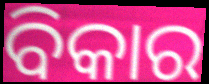
ବିକାର